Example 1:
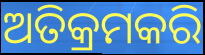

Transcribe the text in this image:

ଅତିକ୍ରମକରି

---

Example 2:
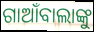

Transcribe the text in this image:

ଗାଆଁବାଲାଙ୍କୁ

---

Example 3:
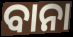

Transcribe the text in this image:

ବାନା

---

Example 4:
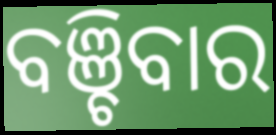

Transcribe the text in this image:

ବଞ୍ଚିବାର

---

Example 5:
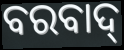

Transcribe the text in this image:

ବରବାଦ୍